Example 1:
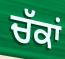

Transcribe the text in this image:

ਚੱਕਾਂ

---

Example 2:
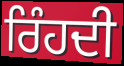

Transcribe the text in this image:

ਰਿੰਹਦੀ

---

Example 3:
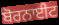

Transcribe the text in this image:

ਬੋਰਨਾਈਟ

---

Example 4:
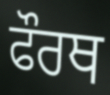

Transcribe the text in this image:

ਫੌਰਥ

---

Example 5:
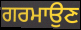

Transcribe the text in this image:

ਗਰਮਾਉਣ